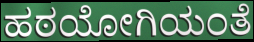
ಹಠಯೋಗಿಯಂತೆ